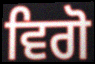
ਵਿਗੋ